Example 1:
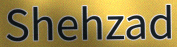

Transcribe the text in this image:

Shehzad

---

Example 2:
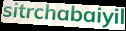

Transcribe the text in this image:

sitrchabaiyil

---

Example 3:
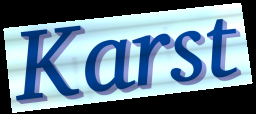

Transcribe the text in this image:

Karst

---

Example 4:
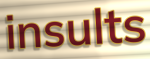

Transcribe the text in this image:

insults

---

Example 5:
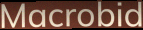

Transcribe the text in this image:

Macrobid